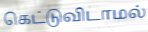
கெட்டுவிடாமல்